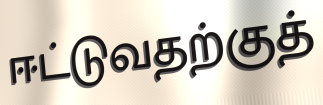
ஈட்டுவதற்குத்